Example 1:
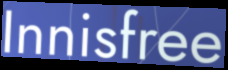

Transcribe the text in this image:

Innisfree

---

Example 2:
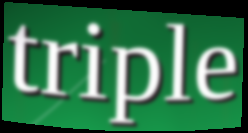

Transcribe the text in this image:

triple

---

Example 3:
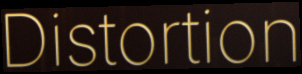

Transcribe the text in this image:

Distortion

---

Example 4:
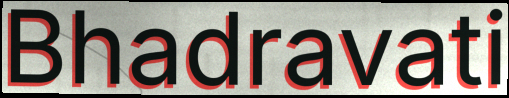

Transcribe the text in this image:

Bhadravati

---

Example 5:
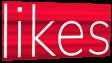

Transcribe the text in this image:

likes